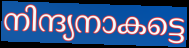
നിന്ദ്യനാകട്ടെ